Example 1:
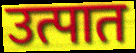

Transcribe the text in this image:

उत्पात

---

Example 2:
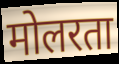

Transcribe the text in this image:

मोलरता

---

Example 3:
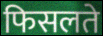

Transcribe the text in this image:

फिसलते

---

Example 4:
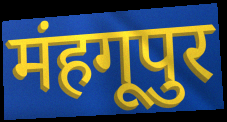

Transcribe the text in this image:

मंहगूपुर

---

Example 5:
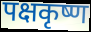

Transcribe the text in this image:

पक्षकृष्ण